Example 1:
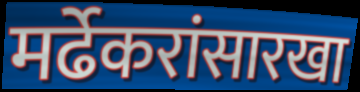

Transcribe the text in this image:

मर्ढेकरांसारखा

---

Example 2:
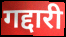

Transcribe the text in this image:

गद्दारी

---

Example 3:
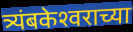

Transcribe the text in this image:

त्र्यंबकेश्वराच्या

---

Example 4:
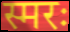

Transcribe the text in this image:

स्मरः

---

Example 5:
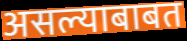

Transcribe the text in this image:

असल्याबाबत